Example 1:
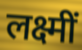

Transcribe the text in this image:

लक्ष्मीं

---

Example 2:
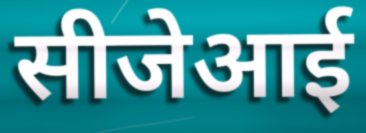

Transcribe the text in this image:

सीजेआई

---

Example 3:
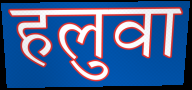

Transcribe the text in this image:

हलुवा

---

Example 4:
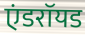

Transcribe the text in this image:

एंडरॉयड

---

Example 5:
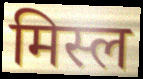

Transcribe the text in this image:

मिस्ल